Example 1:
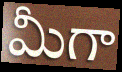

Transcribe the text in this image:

మీగా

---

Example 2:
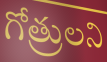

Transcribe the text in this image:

గోత్రులని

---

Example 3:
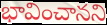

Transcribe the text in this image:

భావించానని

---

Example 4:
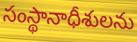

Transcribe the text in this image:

సంస్థానాధీశులను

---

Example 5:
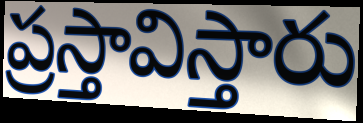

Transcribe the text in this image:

ప్రస్తావిస్తారు